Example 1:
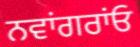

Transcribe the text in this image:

ਨਵਾਂਗਰਾਂਓ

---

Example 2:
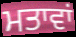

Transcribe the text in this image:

ਮਤਾਵਾਂ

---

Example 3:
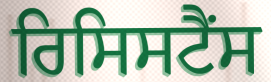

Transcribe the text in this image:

ਰਿਸਿਸਟੈਂਸ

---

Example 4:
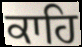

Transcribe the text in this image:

ਕਾਹਿ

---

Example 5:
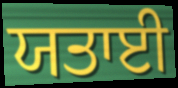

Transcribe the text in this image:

ਯਤਾਈ